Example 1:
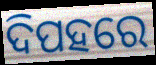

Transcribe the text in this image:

ଦିପହରେ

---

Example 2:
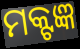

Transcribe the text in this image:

ମକ୍ଟଜ୍ଞ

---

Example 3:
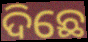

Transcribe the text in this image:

ଦିଛେ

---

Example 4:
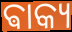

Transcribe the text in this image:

ଵାକ୍ୟ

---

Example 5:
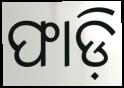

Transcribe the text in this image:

ଫାଡ଼ି